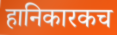
हानिकारकच